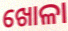
ଖୋଳା